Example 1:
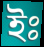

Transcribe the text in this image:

ইঃ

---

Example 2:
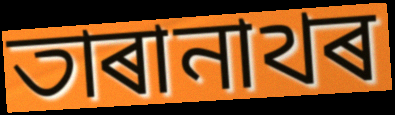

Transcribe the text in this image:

তাৰানাথৰ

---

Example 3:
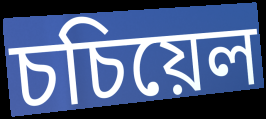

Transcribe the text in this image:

চচিয়েল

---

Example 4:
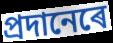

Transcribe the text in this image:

প্ৰদানেৰে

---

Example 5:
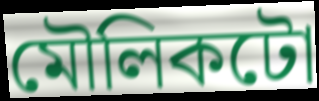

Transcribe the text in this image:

মৌলিকটো